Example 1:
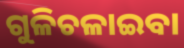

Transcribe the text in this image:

ଗୁଳିଚଳାଇବା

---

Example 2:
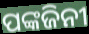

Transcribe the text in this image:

ପଙ୍କଜିନୀ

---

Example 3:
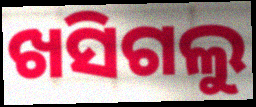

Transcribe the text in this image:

ଖସିଗଲୁ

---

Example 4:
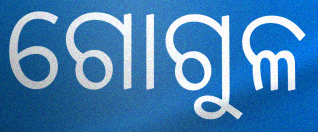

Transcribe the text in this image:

ଗୋଗୁଳ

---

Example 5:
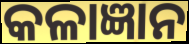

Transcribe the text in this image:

କଳାଜ୍ଞାନ